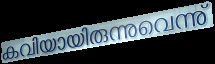
കവിയായിരുന്നുവെന്നു്